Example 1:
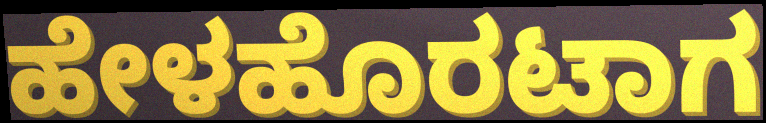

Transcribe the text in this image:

ಹೇಳಹೊರಟಾಗ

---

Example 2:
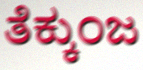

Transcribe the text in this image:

ತೆಕ್ಕುಂಜ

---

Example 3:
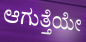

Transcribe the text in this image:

ಆಗುತ್ತೆಯೇ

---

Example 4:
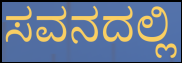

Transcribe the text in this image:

ಸವನದಲ್ಲಿ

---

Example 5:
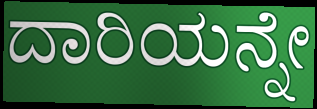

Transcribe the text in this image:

ದಾರಿಯನ್ನೇ